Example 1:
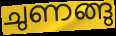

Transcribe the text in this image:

ചുണങ്ങു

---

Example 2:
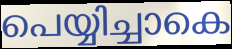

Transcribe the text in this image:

പെയ്യിച്ചാകെ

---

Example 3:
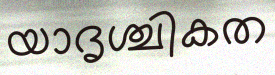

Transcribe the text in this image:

യാദൃശ്ചികത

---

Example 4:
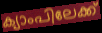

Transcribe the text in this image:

ക്യാംപിലേക്ക്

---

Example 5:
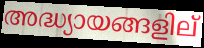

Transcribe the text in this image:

അദ്ധ്യായങ്ങളില്